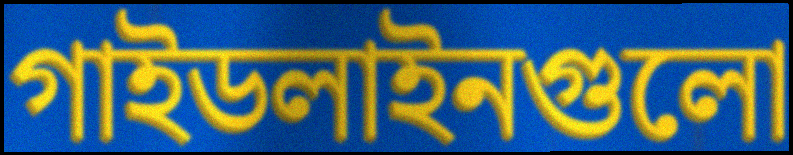
গাইডলাইনগুলো